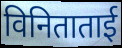
विनिताताई